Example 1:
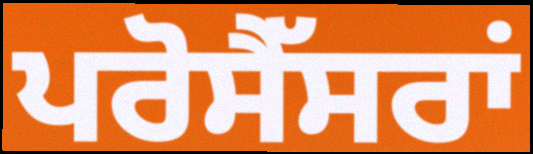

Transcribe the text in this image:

ਪਰੋਸੈੱਸਰਾਂ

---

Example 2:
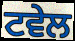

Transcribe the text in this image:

ਟਵੇਲ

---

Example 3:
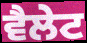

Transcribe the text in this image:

ਵੈਲੇਟ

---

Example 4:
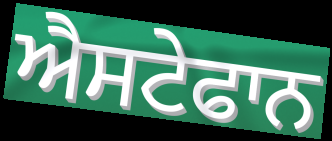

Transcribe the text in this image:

ਐਸਟੇਫਾਨ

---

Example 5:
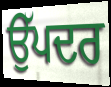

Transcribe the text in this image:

ਉੱਪਦਰ